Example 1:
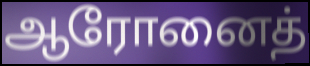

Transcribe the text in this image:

ஆரோனைத்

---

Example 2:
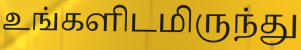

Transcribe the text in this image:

உங்களிடமிருந்து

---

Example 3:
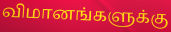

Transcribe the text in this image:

விமானங்களுக்கு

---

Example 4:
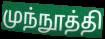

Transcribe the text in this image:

முந்நூத்தி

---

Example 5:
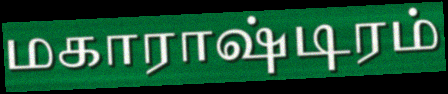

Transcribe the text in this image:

மகாராஷ்டிரம்